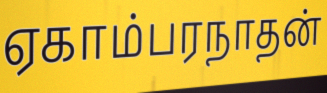
ஏகாம்பரநாதன்